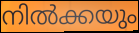
നിൽക്കയും